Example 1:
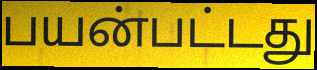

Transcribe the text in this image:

பயன்பட்டது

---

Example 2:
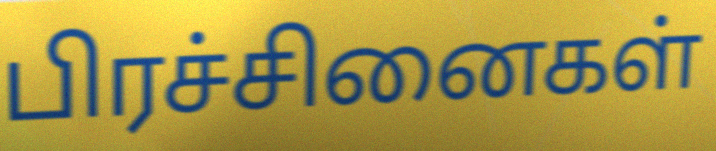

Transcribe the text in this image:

பிரச்சினைகள்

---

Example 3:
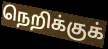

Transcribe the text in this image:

நெறிக்குக்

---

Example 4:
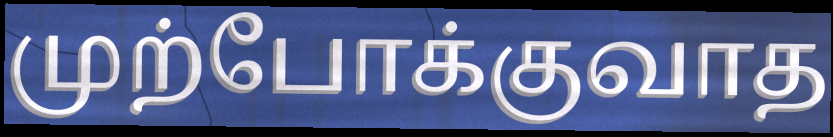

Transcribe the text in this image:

முற்போக்குவாத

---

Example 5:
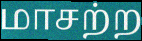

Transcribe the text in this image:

மாசற்ற